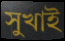
সুখাই